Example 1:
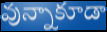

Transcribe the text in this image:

వున్నాకూడా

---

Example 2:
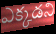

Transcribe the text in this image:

ఎక్కడని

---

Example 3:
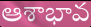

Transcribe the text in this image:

ఆశాభావ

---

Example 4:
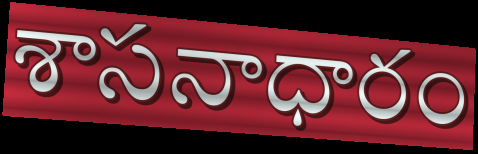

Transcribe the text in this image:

శాసనాధారం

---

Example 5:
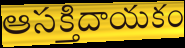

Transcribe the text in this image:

ఆసక్తిదాయకం